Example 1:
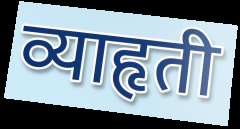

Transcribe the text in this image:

व्याहृती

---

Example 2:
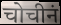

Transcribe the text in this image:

चोचीनं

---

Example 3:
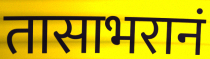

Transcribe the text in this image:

तासाभरानं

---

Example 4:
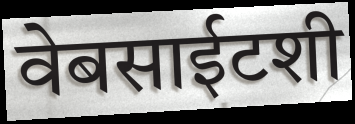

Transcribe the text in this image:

वेबसाईटशी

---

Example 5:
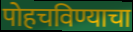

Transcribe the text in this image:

पोहचविण्याचा